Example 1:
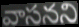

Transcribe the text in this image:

వాసనని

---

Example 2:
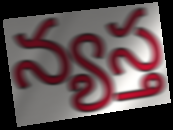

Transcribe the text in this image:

న్యస్త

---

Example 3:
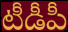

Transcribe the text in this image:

టీడీపీ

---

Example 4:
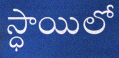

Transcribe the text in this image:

స్ధాయిలో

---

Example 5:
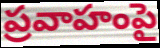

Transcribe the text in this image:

ప్రవాహంపై